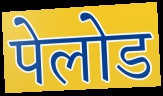
पेलोड